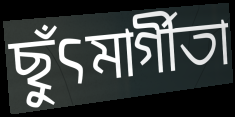
ছুঁৎমার্গীতা